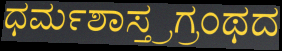
ಧರ್ಮಶಾಸ್ತ್ರಗ್ರಂಥದ